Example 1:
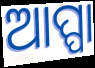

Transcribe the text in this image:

ଆପ୍ପା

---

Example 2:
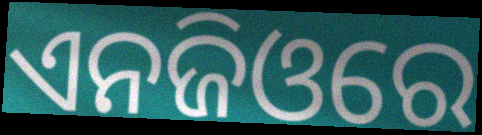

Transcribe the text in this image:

ଏନଜିଓରେ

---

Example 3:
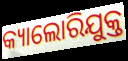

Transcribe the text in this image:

କ୍ୟାଲୋରିଯୁକ୍ତ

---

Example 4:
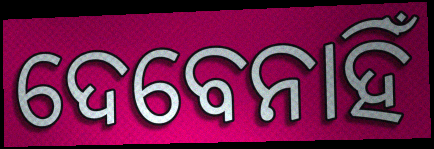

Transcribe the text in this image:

ଦେବେନାହିଁ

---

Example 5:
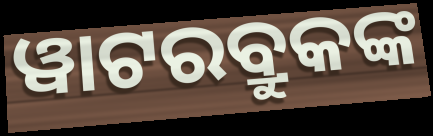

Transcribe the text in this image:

ୱାଟରବ୍ରୁକଙ୍କ